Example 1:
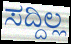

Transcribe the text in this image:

ಸದ್ದಿಲ್ಲ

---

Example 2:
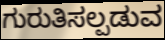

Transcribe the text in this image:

ಗುರುತಿಸಲ್ಪಡುವ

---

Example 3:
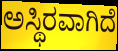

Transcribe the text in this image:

ಅಸ್ಥಿರವಾಗಿದೆ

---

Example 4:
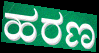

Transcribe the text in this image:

ಹರಣ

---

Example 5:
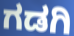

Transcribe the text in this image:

ಗಡಗಿ